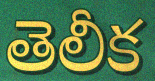
తెలీక